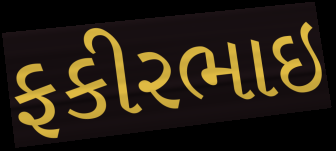
ફકીરભાઇ